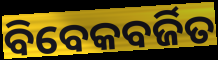
ବିବେକବର୍ଜିତ